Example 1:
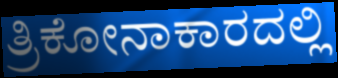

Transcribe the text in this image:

ತ್ರಿಕೋನಾಕಾರದಲ್ಲಿ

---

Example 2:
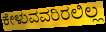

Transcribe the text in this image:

ಕೇಳುವವರಿರಲಿಲ್ಲ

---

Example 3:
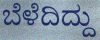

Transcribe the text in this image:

ಬೆಳೆದಿದ್ದು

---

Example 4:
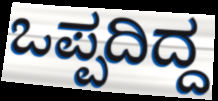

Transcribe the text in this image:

ಒಪ್ಪದಿದ್ದ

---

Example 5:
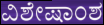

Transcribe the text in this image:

ವಿಶೇಷಾಂಶ